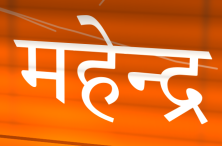
महेन्‍द्र